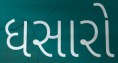
ધસારો